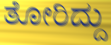
ತೋರಿದ್ದು